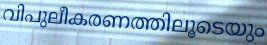
വിപുലീകരണത്തിലൂടെയും